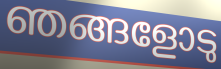
ഞങ്ങളോടു